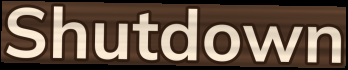
Shutdown